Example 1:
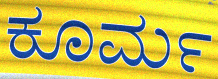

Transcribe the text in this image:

ಕೂರ್ಮ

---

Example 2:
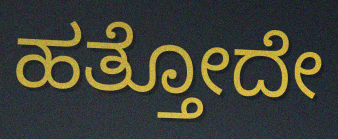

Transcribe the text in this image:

ಹತ್ತೋದೇ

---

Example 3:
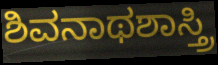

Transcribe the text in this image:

ಶಿವನಾಥಶಾಸ್ತ್ರಿ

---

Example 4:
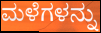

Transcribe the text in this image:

ಮಳೆಗಳನ್ನು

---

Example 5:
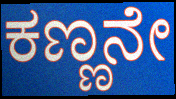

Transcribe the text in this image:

ಕಣ್ಣನೇ